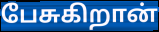
பேசுகிறான்